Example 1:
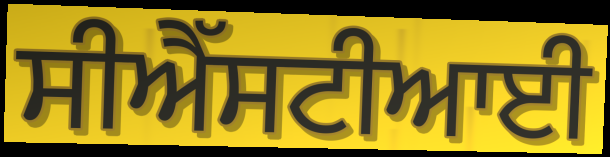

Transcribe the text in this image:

ਸੀਐੱਸਟੀਆਈ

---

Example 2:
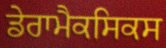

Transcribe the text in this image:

ਡੇਰਾਮੈਕਸਿਕਸ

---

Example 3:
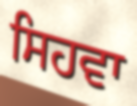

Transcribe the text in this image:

ਸਿਹਵਾ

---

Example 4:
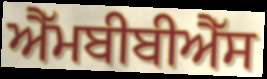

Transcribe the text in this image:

ਐੱਮਬੀਬੀਐੱਸ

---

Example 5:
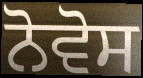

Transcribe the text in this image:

ਨੋਵੋਸ